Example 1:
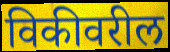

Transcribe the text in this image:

विकीवरील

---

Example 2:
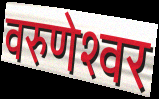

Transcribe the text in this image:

वरुणेश्वर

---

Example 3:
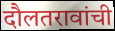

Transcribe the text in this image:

दौलतरावांची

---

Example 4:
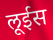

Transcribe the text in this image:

लूईस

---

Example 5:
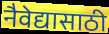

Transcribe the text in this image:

नैवेद्यासाठी